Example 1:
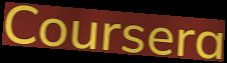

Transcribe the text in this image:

Coursera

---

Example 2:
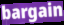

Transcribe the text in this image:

bargain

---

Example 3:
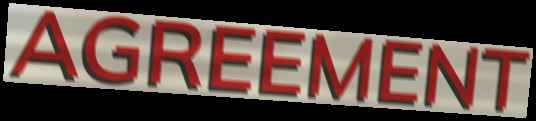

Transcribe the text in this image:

AGREEMENT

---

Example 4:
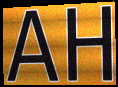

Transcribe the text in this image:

AH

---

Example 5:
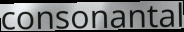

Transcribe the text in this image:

consonantal